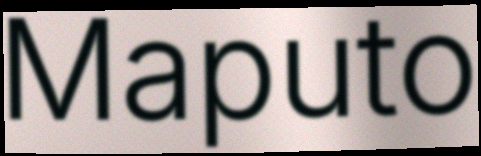
Maputo